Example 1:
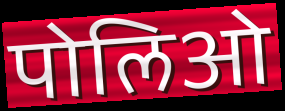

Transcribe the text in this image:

पोलिओ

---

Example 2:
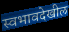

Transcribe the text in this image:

स्वभावदेखील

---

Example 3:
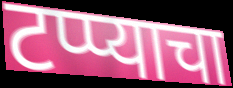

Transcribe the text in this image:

टप्प्याचा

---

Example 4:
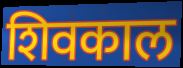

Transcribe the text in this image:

शिवकाल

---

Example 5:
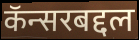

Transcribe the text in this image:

कॅन्सरबद्दल